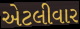
એટલીવાર